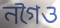
নগৈও